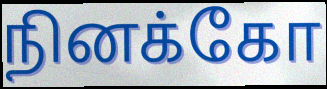
நினக்கோ